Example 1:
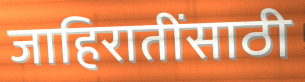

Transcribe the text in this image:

जाहिरातींसाठी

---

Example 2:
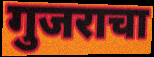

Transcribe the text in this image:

गुजराचा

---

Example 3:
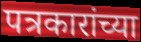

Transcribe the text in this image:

पत्रकारांच्या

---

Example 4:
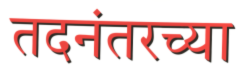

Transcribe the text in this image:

तदनंतरच्या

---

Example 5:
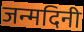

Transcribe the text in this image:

जन्मदिनी